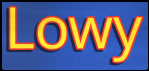
Lowy